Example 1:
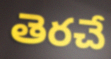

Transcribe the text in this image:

తెరచే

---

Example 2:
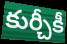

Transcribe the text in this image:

కుర్చీకీ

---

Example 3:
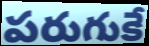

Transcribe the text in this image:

పరుగుకే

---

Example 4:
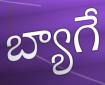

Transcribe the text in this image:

బ్యాగే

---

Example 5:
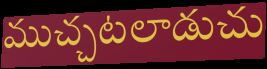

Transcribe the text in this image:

ముచ్చటలాడుచు